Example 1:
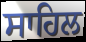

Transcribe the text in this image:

ਸਾਹਿਲ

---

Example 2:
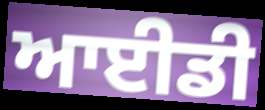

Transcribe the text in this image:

ਆਈਡੀ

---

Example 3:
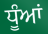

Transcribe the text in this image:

ਧੂੰਆਂ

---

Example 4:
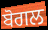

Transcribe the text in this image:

ਬੋਗਲ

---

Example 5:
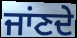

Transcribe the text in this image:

ਜਾਂਣਦੇ